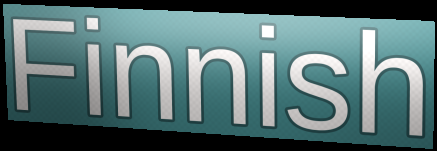
Finnish